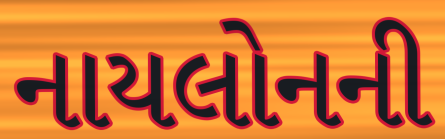
નાયલોનની